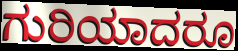
ಗುರಿಯಾದರೂ